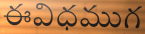
ఈవిధముగ